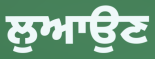
ਲੁਆਉਣ